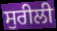
ਸੁਰੀਲੀ